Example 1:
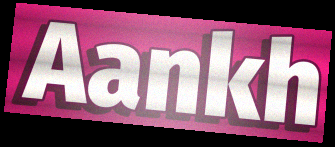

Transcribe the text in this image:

Aankh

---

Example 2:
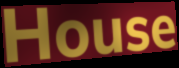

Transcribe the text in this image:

House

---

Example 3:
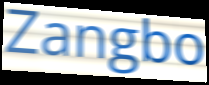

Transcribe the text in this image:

Zangbo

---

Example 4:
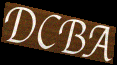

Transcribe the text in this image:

DCBA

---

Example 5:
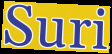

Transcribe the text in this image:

Suri